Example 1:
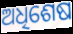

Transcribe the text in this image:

ଅଧିଶେଷ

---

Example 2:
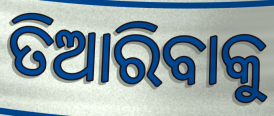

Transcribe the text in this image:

ତିଆରିବାକୁ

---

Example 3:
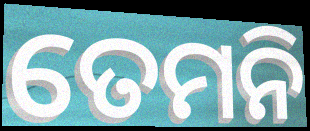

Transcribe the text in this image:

ତେମନି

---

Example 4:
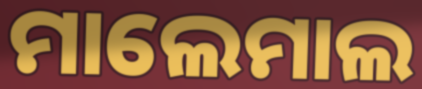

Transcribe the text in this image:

ମାଲେମାଲ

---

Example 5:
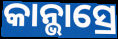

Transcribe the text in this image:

କାନ୍ଭାସ୍ରେ